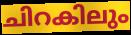
ചിറകിലും